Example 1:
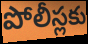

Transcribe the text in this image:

పోలీస్లకు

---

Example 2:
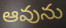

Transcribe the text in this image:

ఆవును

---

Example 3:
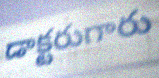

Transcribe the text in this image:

డాక్టరుగారు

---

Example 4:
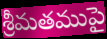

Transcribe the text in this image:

శ్రీమతముపై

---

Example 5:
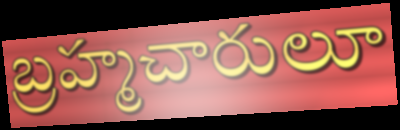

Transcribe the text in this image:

బ్రహ్మచారులూ